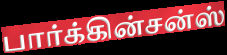
பார்க்கின்சன்ஸ்